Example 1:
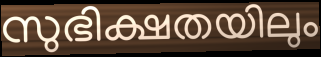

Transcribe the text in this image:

സുഭിക്ഷതയിലും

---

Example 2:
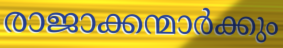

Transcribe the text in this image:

രാജാക്കന്മാർക്കും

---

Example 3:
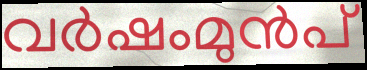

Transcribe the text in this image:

വർഷംമുൻപ്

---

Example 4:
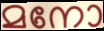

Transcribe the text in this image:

മനോ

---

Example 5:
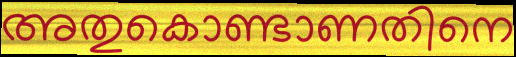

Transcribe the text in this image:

അതുകൊണ്ടാണതിനെ